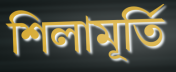
শিলামূর্তি